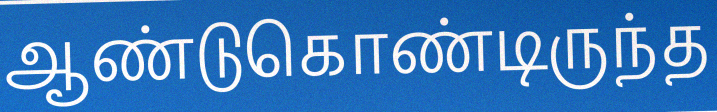
ஆண்டுகொண்டிருந்த